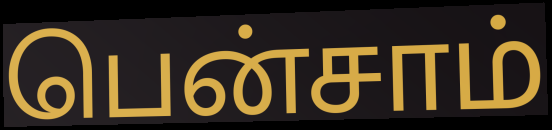
பென்சாம்